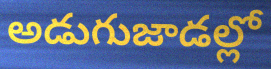
అడుగుజాడల్లో